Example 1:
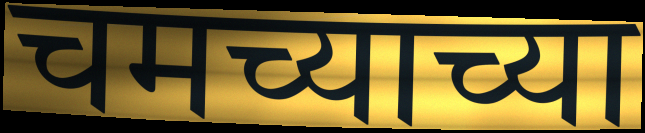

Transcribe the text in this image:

चमच्याच्या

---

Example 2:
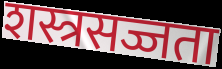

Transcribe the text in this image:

शस्त्रसज्जता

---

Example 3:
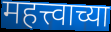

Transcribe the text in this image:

महत्त्वाच्या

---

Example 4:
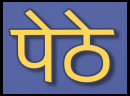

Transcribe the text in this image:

पेठे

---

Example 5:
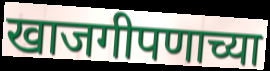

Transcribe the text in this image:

खाजगीपणाच्या